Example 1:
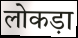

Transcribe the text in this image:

लोकड़ा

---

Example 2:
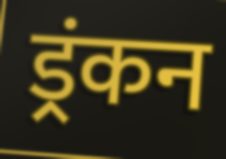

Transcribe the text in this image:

ड्रंकन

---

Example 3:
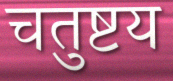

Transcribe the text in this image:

चतुष्टय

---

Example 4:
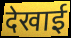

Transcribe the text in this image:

देखाई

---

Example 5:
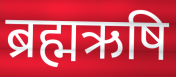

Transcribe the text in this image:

ब्रह्मऋषि